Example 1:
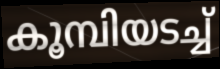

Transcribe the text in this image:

കൂമ്പിയടച്ച്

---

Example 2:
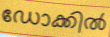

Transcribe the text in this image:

ഡോക്കിൽ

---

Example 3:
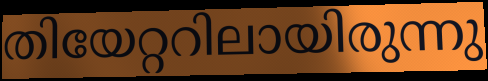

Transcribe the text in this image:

തിയേറ്ററിലായിരുന്നു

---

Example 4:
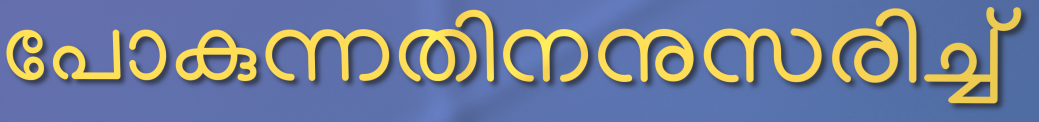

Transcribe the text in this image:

പോകുന്നതിനനുസരിച്ച്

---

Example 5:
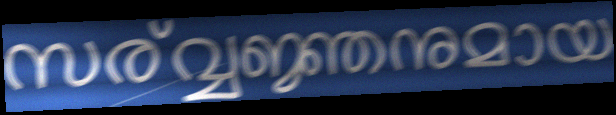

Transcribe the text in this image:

സര്വ്വജ്ഞനുമായ